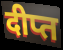
दीप्त